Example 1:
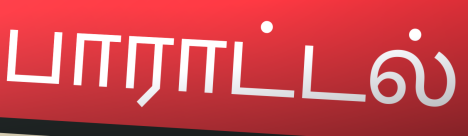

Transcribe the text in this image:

பாராட்டல்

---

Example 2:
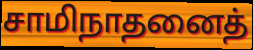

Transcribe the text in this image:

சாமிநாதனைத்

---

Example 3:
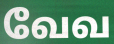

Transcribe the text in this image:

வேவ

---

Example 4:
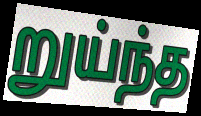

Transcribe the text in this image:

றுய்ந்த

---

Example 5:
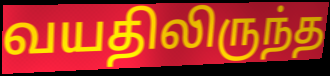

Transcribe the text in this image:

வயதிலிருந்த